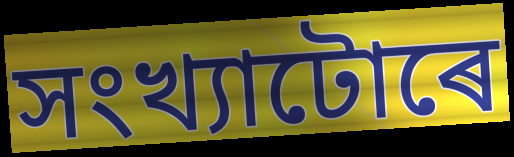
সংখ্যাটোৰে